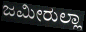
ಜಮೀರುಲ್ಲಾ